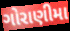
ગોરાણીમા